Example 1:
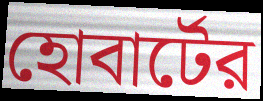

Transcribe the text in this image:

হোবার্টের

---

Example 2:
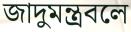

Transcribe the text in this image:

জাদুমন্ত্রবলে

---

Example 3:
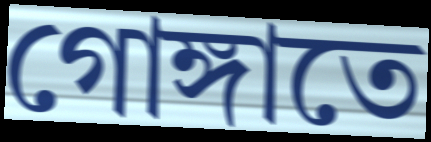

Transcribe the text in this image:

গোঙ্গাতে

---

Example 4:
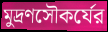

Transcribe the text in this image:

মুদ্রণসৌকর্যের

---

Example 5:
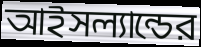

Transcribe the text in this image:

আইসল্যান্ডের